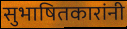
सुभाषितकारांनी